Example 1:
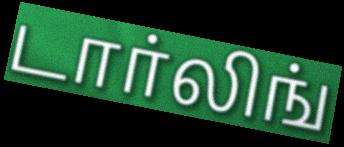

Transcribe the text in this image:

டார்லிங்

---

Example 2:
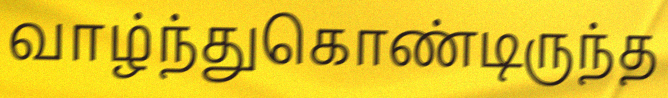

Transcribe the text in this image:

வாழ்ந்துகொண்டிருந்த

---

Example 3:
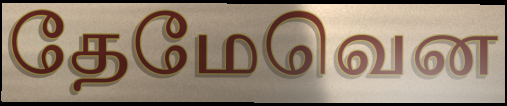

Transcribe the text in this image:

தேமேவென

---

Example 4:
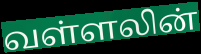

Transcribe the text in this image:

வள்ளலின்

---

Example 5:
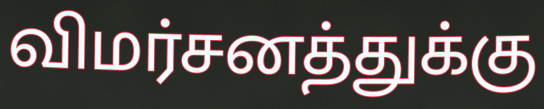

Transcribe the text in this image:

விமர்சனத்துக்கு